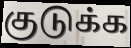
குடுக்க